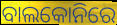
ବାଲକୋନିରେ